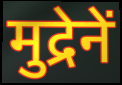
मुद्रेनें